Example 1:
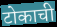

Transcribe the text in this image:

टोकाची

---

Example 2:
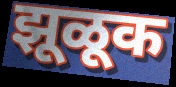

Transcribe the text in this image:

झूळूक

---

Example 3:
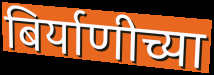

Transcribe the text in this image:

बिर्याणीच्या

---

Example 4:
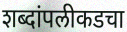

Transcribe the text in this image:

शब्दांपलीकडचा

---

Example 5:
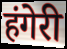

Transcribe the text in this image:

हंगेरी